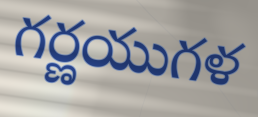
గర్ణయుగళ